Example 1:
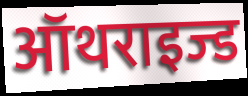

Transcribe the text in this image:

ऑथराइज्ड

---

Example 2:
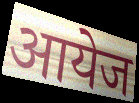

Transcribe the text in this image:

आयेज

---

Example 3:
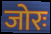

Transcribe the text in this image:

जोरः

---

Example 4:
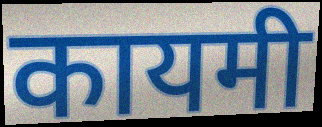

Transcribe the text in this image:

कायमी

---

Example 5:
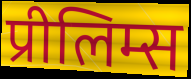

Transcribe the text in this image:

प्रीलिम्स